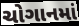
ચોગાનમાં